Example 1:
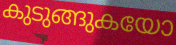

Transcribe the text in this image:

കുടുങ്ങുകയോ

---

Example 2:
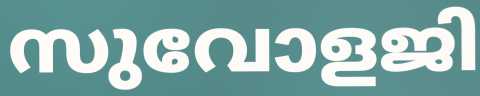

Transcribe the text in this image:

സുവോളജി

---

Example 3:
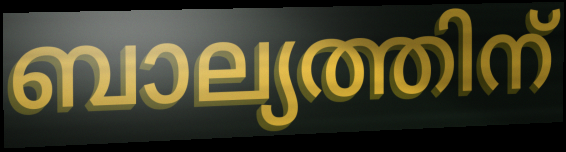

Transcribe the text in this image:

ബാല്യത്തിന്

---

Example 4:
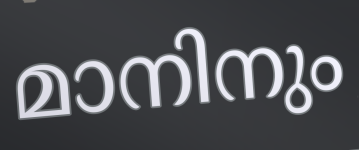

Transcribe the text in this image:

മാനിനും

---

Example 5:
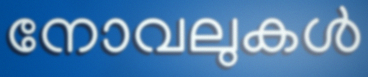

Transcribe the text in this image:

നോവലുകൾ